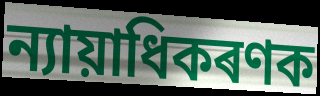
ন্যায়াধিকৰণক